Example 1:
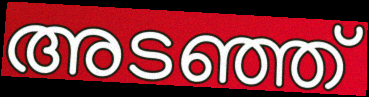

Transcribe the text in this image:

അടഞ്ഞ്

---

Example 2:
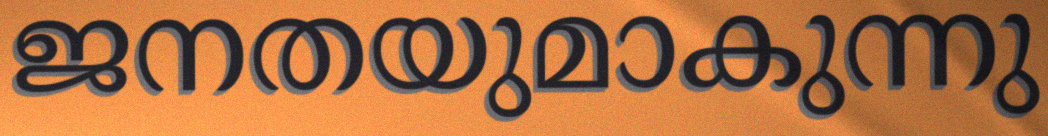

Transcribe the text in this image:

ജനതയുമാകുന്നു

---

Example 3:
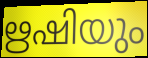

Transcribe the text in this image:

ഋഷിയും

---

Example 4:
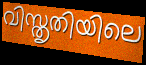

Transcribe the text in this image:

വിസ്തൃതിയിലെ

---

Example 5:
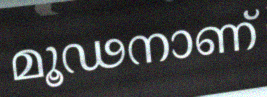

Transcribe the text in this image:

മൂഢനാണ്